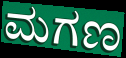
ಮಗಣ